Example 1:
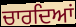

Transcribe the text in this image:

ਚਾਰਦਿਆਂ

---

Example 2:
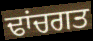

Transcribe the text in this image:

ਢਾਂਚਗਤ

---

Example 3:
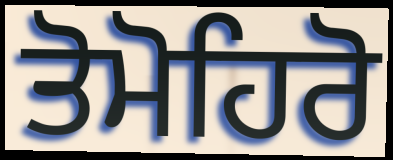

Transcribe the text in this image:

ਤੋਮੋਹਿਰੋ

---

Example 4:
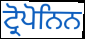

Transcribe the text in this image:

ਟ੍ਰੋਪੋਨਿਨ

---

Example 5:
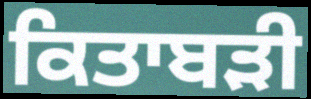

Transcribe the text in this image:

ਕਿਤਾਬੜੀ